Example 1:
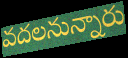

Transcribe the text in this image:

వదలనున్నారు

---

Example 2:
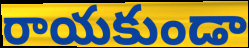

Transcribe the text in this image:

రాయకుండా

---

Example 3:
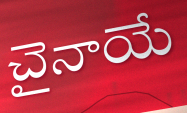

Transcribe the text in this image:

చైనాయే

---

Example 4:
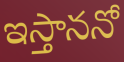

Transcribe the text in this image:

ఇస్తాననో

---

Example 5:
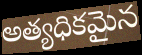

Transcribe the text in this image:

అత్యధికమైన